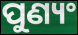
ପୁଣ୍ୟଂ